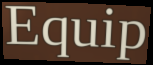
Equip